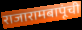
राजारामबापूंची